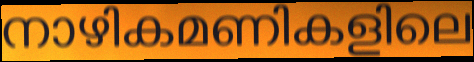
നാഴികമണികളിലെ